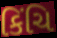
કિંચિ